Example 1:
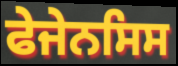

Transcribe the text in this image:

ਫੇਜੇਨਸਿਸ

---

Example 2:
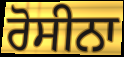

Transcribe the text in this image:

ਰੋਸੀਨਾ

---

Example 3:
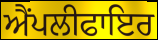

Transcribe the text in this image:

ਐਂਪਲੀਫਾਇਰ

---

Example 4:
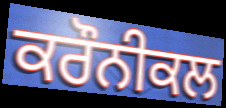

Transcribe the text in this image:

ਕਰੌਨੀਕਲ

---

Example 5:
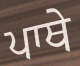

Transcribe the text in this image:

ਪਾਥੇ